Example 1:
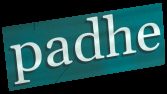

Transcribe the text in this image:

padhe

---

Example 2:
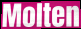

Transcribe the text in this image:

Molten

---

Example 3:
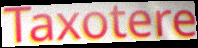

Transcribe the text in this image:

Taxotere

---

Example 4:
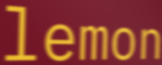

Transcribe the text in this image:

lemon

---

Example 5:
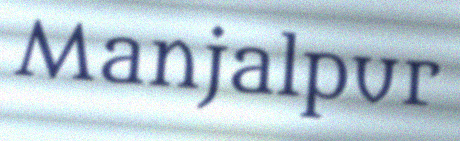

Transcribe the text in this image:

Manjalpur